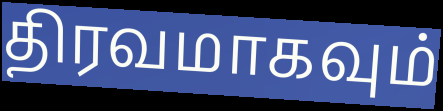
திரவமாகவும்